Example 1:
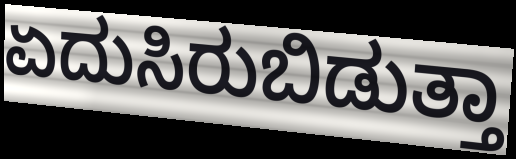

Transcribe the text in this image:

ಏದುಸಿರುಬಿಡುತ್ತಾ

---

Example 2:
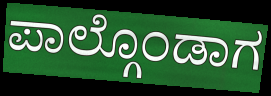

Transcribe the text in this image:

ಪಾಲ್ಗೊಂಡಾಗ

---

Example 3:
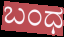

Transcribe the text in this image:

ಬಂಧ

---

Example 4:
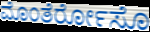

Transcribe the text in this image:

ಮೊಂತೆರ್ರೋಸೊ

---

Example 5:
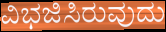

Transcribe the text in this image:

ವಿಭಜಿಸಿರುವುದು